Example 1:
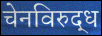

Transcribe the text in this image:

चेनविरुद्ध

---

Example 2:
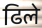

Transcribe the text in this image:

ढिले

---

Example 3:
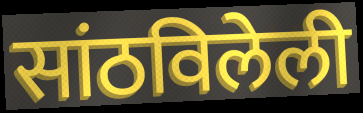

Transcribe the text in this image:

सांठविलेली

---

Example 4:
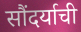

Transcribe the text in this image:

सौंदर्याची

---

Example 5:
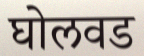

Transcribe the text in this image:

घोलवड